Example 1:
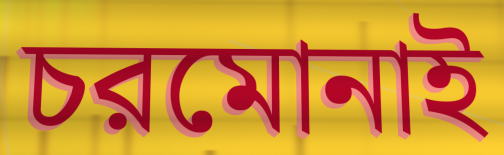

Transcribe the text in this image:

চরমোনাই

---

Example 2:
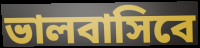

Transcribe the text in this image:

ভালবাসিবে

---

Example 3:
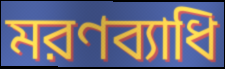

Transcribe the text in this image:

মরণব্যাধি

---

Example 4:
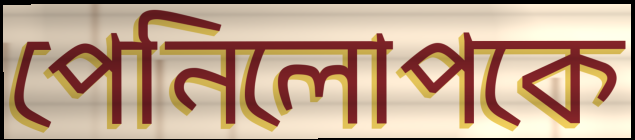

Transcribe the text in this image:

পেনিলোপকে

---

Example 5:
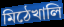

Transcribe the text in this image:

মিঠেখালি